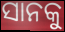
ସାନକୁ